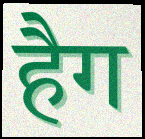
हैग